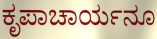
ಕೃಪಾಚಾರ್ಯನೂ